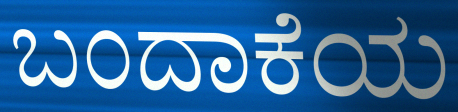
ಬಂದಾಕೆಯ